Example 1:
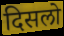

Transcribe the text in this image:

दिसलो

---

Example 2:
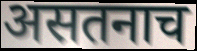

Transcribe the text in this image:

असतनाच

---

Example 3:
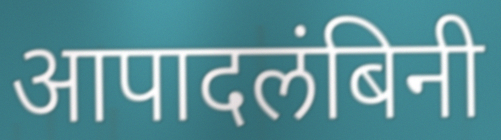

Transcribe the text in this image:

आपादलंबिनी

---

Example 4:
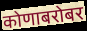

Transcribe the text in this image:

कोणाबरोबर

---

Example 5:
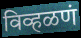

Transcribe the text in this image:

विव्हळणं